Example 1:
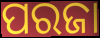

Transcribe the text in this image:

ପରଜା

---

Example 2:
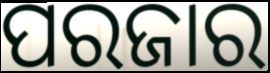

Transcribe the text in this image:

ପରଜାର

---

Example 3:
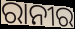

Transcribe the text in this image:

ରାନୀର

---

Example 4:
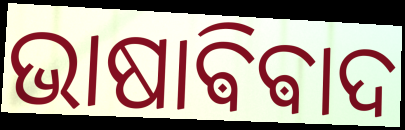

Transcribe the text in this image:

ଭାଷାଵିଵାଦ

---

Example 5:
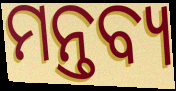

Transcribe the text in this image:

ମନ୍ତବ୍ୟ